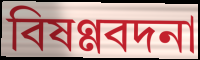
বিষণ্ণবদনা